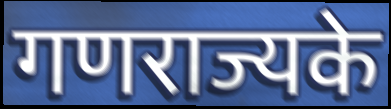
गणराज्यके